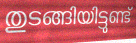
തുടങ്ങിയിട്ടുണ്ട്